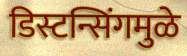
डिस्टन्सिंगमुळे